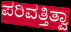
ಪರಿವತ್ತಿತ್ವಾ